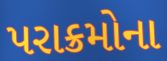
પરાક્રમોના